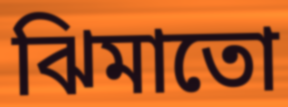
ঝিমাতো